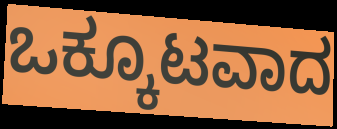
ಒಕ್ಕೂಟವಾದ